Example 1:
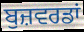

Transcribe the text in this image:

ਬੁਜ਼ਵਰਡਾਂ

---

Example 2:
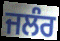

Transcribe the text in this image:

ਜਲੰਰ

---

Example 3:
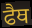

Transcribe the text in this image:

ਫੈਥ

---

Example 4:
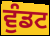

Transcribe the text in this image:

ਵੁੰਡਟ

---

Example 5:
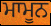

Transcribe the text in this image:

ਮਾਮੂਨ